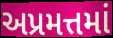
અપ્રમત્તમાં